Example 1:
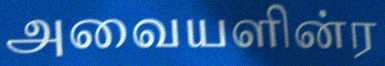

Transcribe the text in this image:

அவையளின்ர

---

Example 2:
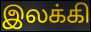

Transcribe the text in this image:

இலக்கி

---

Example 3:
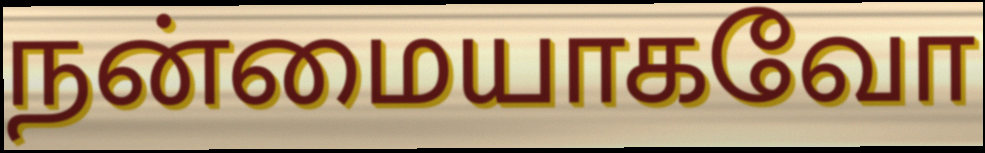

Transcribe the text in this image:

நன்மையாகவோ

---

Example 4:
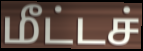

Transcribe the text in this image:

மீட்டச்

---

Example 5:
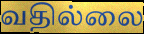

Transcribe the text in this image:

வதில்லை